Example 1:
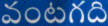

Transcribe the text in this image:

వంటగది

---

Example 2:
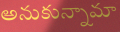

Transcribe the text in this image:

అనుకున్నామా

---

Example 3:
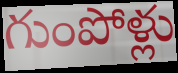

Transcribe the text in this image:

గుంపోళ్లు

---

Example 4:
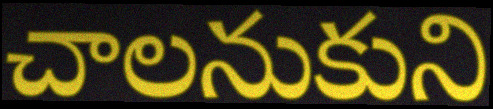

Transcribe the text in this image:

చాలనుకుని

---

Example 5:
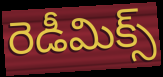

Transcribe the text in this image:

రెడీమిక్స్